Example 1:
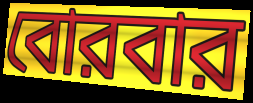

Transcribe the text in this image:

বোরবার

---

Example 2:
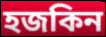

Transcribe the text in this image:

হজকিন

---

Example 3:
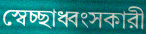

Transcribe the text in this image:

স্বেচ্ছাধ্বংসকারী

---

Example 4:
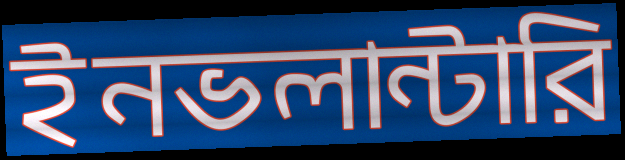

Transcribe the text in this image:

ইনভলান্টারি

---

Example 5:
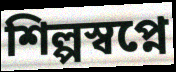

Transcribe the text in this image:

শিল্পস্বপ্নে